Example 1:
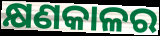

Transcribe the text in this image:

କ୍ଷଣକାଳର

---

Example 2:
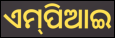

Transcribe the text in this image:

ଏମ୍‌ପିଆଇ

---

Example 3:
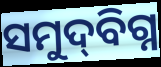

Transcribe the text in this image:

ସମୁଦ୍‌ବିଗ୍ନ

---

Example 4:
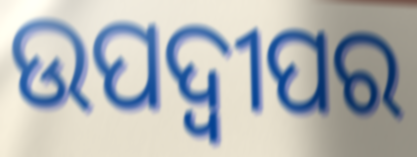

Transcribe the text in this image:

ଉପଦ୍ୱୀପର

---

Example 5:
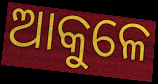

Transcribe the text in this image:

ଆକୁଳେ